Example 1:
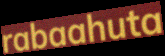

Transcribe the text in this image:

rabaahuta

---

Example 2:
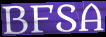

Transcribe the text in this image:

BFSA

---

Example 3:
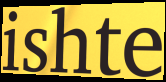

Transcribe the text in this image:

ishte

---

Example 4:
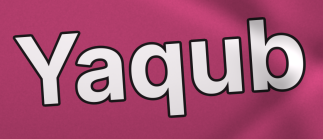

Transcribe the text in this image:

Yaqub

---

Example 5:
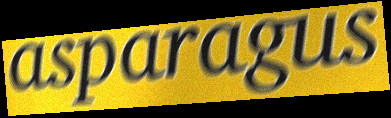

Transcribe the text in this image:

asparagus